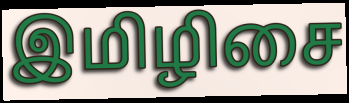
இமிழிசை